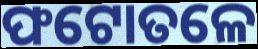
ଫଟୋତଳେ